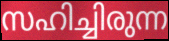
സഹിച്ചിരുന്ന